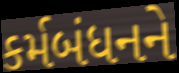
કર્મબંધનને